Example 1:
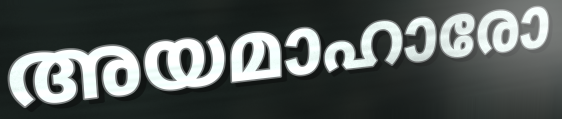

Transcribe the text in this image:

അയമാഹാരോ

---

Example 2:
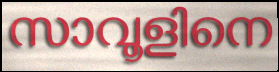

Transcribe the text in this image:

സാവൂളിനെ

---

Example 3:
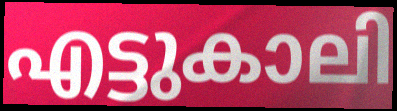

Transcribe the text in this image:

എട്ടുകാലി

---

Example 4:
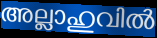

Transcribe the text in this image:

അല്ലാഹുവിൽ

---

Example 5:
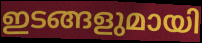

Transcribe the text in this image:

ഇടങ്ങളുമായി